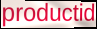
productid